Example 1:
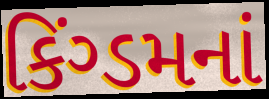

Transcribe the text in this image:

કિંગ્ડમનાં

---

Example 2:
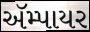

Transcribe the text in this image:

ઍમ્પાયર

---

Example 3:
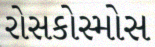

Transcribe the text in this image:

રોસકોસ્મોસ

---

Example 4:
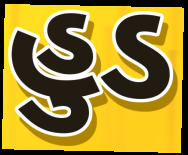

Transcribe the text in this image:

હુડ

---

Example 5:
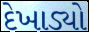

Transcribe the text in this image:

દેખાડ્યો